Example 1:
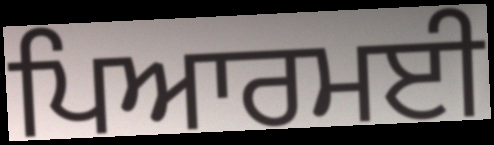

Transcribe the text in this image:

ਪਿਆਰਮਈ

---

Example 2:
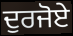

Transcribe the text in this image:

ਦੁਰਜੋਏ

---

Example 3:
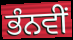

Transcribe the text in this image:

ਭੰਨਵੀਂ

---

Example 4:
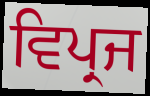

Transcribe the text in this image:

ਵਿਪ੍ਰਜ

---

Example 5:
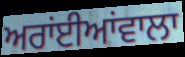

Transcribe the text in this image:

ਅਰਾਂਈਆਂਵਾਲਾ